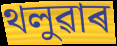
থলুৱাৰ